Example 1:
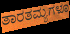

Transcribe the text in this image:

ತಾರತಮ್ಯಗಳೂ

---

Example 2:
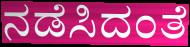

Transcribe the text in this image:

ನಡೆಸಿದಂತೆ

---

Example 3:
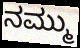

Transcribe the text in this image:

ನಮ್ಮು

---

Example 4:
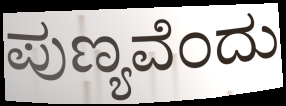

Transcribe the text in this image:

ಪುಣ್ಯವೆಂದು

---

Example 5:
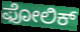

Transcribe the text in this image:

ಫೋಲಿಕ್